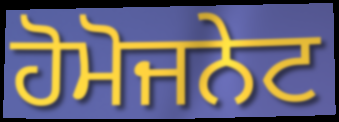
ਹੋਮੋਜਨੇਟ